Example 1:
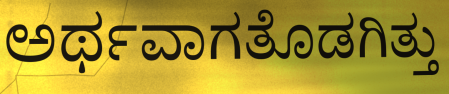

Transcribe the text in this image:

ಅರ್ಥವಾಗತೊಡಗಿತ್ತು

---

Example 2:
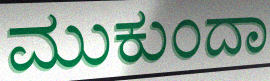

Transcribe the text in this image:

ಮುಕುಂದಾ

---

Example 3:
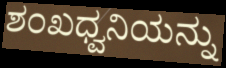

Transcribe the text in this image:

ಶಂಖಧ್ವನಿಯನ್ನು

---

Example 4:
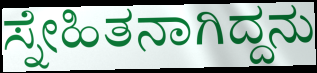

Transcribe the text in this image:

ಸ್ನೇಹಿತನಾಗಿದ್ದನು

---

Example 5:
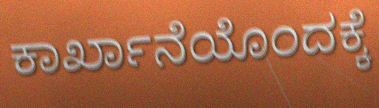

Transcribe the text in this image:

ಕಾರ್ಖಾನೆಯೊಂದಕ್ಕೆ